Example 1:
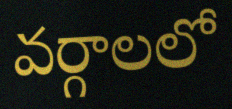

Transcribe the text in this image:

వర్గాలలో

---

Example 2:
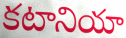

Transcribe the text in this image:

కటానియా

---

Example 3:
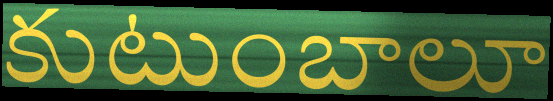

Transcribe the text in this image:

కుటుంబాలూ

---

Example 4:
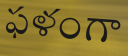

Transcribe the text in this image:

ఫళంగా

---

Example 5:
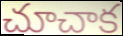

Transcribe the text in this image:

చూచాక